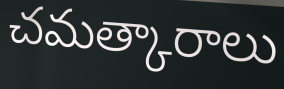
చమత్కారాలు